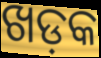
ଖଡ଼କ